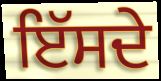
ਇੱਸਦੇ